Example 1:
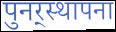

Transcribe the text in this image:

पुनर्स्थापना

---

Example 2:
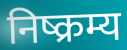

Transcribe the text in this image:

निष्क्रम्य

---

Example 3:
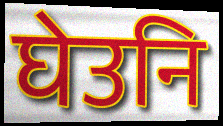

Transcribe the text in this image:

घेउनि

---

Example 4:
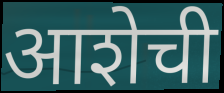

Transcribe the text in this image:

आशेची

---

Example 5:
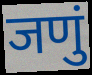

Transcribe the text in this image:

जणुं